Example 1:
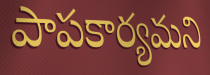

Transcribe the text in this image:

పాపకార్యమని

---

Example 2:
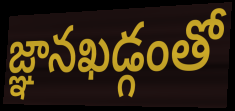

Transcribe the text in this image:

జ్ఞానఖడ్గంతో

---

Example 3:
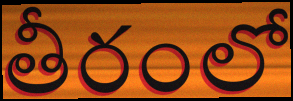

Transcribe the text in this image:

తీరంలో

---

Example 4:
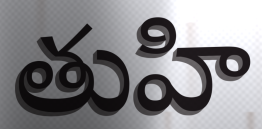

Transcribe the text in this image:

తుహి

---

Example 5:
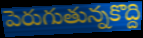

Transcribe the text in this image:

పెరుగుతున్నకొద్ది